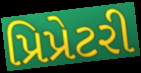
પ્રિપ્રેટરી